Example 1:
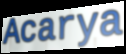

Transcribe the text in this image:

Acarya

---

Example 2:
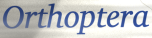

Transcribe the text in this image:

Orthoptera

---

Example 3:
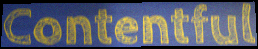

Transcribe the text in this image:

Contentful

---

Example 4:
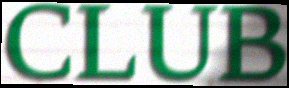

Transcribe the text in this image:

CLUB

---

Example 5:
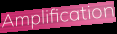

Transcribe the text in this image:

Amplification